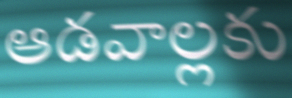
ఆడవాల్లకు